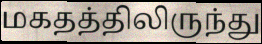
மகதத்திலிருந்து